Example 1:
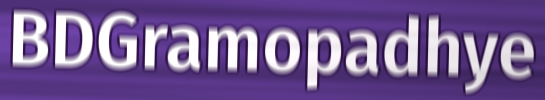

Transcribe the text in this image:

BDGramopadhye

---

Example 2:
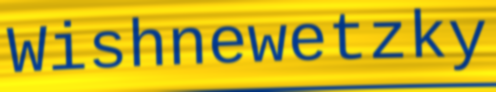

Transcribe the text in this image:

Wishnewetzky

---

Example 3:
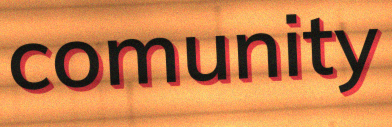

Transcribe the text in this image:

comunity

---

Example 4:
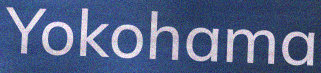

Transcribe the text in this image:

Yokohama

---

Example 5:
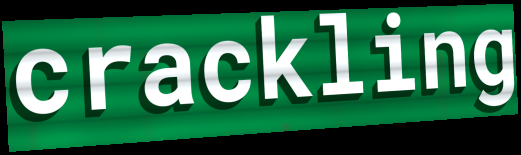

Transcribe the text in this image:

crackling